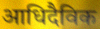
आधिदैविक